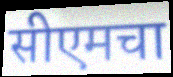
सीएमचा